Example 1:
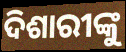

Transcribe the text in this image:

ଦିଶାରୀଙ୍କୁ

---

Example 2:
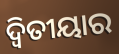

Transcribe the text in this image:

ଦ୍ଵିତୀୟାର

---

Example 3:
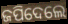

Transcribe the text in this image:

ଜପିଦେଲେ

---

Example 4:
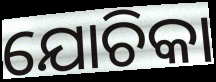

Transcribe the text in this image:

ଯୋଚିକା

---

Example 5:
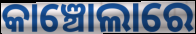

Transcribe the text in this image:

କାଞ୍ଚୋଲାରେ